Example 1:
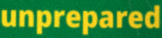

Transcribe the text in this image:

unprepared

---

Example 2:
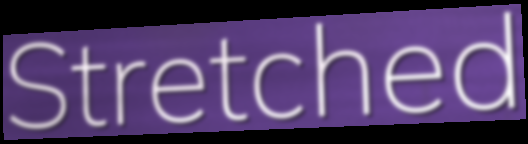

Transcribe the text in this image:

Stretched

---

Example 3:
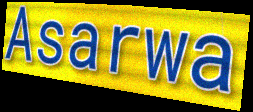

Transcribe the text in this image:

Asarwa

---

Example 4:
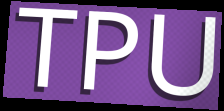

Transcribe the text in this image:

TPU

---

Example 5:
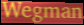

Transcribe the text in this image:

Wegman